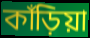
কাঁড়িয়া